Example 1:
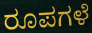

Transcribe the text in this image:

ರೂಪಗಳೆ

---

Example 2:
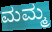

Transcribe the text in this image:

ಮಮ್ಮ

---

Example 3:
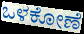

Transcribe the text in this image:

ಒಳಕೋಣೆ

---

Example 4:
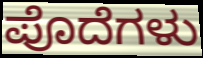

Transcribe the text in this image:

ಪೊದೆಗಳು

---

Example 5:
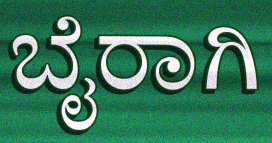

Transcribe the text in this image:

ಬೈರಾಗಿ